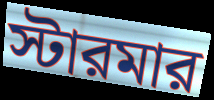
স্টারমার